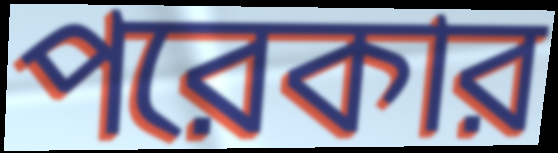
পরেকার